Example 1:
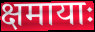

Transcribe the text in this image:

क्षमायाः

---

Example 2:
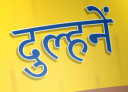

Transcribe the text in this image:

दुल्हनें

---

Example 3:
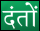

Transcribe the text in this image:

दंतों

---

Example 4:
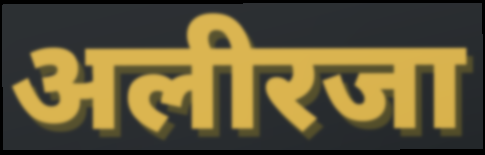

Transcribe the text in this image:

अलीरजा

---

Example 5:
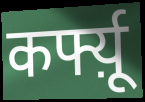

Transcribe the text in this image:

कर्फ्य़ू